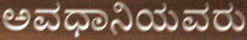
ಅವಧಾನಿಯವರು